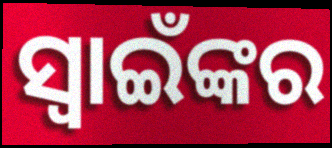
ସ୍ଵାଇଁଙ୍କର